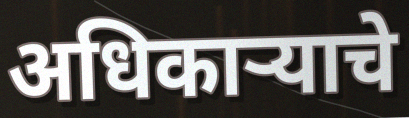
अधिकाऱ्याचे